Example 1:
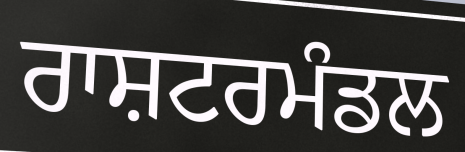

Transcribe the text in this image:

ਰਾਸ਼ਟਰਮੰਡਲ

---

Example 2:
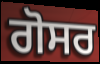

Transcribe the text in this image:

ਗੋਸਰ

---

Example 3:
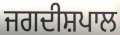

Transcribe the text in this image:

ਜਗਦੀਸ਼ਪਾਲ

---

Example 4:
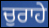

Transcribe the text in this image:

ਚੁਰਾਹੇ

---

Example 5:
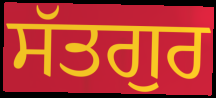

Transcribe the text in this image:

ਸੱਤਗੁਰ